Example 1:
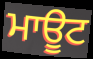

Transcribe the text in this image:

ਮਾਊਟ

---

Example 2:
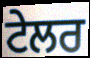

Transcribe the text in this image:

ਟੇਲਰ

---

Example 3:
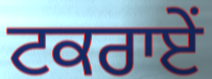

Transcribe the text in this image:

ਟਕਰਾਏਂ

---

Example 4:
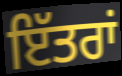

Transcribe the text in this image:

ਇੱਤਰਾਂ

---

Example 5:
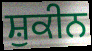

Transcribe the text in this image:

ਸ਼ੁਕੀਨ